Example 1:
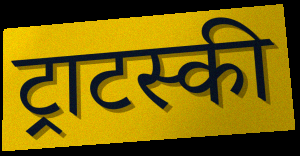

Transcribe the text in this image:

ट्राटस्की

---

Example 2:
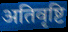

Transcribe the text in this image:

अतिवृष्टि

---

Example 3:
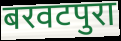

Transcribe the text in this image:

बरवटपुरा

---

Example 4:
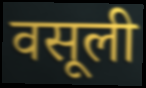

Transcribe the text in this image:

वसूली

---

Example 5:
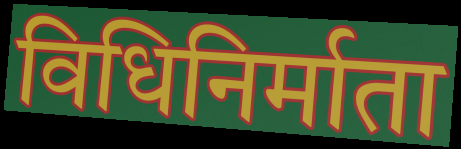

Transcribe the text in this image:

विधिनिर्माता